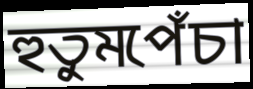
হুতুমপেঁচা